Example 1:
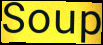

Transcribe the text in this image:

Soup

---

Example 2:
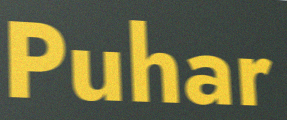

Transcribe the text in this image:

Puhar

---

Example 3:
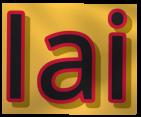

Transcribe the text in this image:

Iai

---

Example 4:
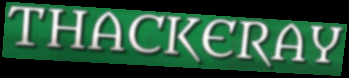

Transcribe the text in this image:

THACKERAY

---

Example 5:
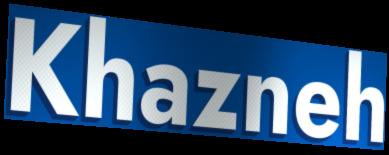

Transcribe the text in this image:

Khazneh